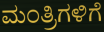
ಮಂತ್ರಿಗಳಿಗೆ